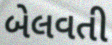
બેલવતી